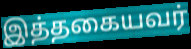
இத்தகையவர்